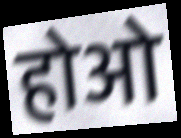
होओ